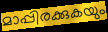
മാപ്പിരക്കുകയും